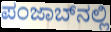
ಪಂಜಾಬ್‌ನಲ್ಲಿ